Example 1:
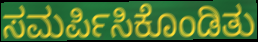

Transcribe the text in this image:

ಸಮರ್ಪಿಸಿಕೊಂಡಿತು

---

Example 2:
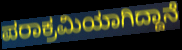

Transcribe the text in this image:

ಪರಾಕ್ರಮಿಯಾಗಿದ್ದಾನೆ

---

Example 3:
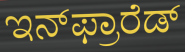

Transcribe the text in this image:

ಇನ್‌ಫ್ರಾರೆಡ್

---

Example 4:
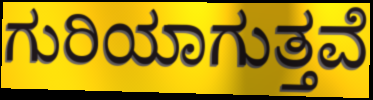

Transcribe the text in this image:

ಗುರಿಯಾಗುತ್ತವೆ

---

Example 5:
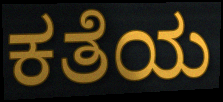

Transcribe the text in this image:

ಕತೆಯ